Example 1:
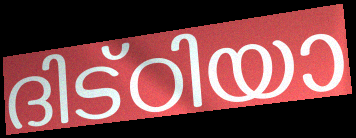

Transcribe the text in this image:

ദിട്ഠിയാ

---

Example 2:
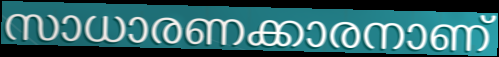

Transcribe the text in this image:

സാധാരണക്കാരനാണ്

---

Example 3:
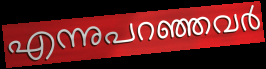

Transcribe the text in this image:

എന്നുപറഞ്ഞവർ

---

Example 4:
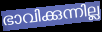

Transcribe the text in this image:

ഭാവിക്കുന്നില്ല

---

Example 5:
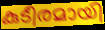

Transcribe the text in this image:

കുടീരമായി